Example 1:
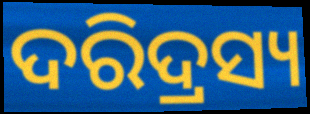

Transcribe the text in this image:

ଦରିଦ୍ରସ୍ୟ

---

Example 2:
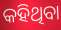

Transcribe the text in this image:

କହିଥିବା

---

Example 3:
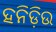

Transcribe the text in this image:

ହନିଡ଼ିଉ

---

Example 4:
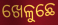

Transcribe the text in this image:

ଖେଳୁଛେ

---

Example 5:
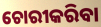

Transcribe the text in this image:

ଚୋରୀକରିବା